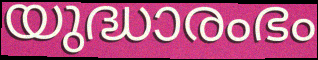
യുദ്ധാരംഭം